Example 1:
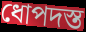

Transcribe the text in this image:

ধোপদস্ত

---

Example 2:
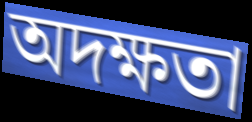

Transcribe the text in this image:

অদক্ষতা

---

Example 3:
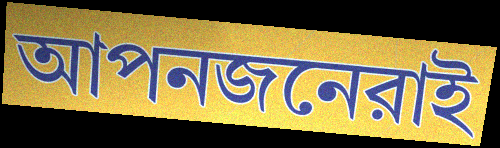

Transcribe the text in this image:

আপনজনেরাই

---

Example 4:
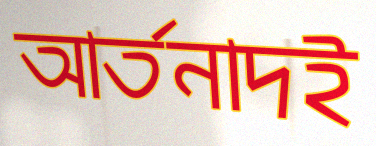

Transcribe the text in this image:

আর্তনাদই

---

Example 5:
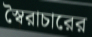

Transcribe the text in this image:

স্বৈরাচারের